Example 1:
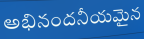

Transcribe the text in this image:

అభినందనీయమైన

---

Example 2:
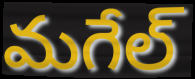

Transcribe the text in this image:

మగేల్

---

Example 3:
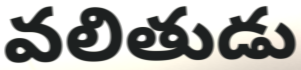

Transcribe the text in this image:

వలితుడు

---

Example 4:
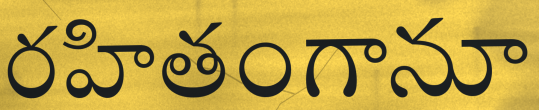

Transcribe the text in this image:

రహితంగానూ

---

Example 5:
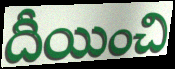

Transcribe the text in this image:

దీయించి